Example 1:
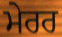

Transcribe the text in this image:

ਮੇਰਰ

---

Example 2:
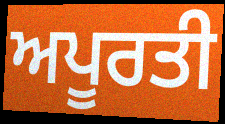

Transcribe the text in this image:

ਅਪੂਰਤੀ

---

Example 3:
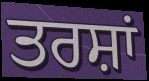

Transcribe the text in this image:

ਤਰਸ਼ਾਂ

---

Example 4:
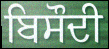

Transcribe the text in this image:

ਬਿਸੌਦੀ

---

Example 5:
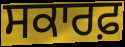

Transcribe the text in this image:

ਸਕਾਰਫ਼